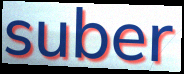
suber